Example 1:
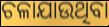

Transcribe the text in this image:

ଚଳାଯାଉଥିବା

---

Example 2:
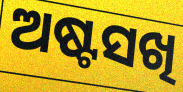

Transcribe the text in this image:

ଅଷ୍ଟସଖି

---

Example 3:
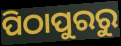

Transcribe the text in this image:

ପିଠାପୁରରୁ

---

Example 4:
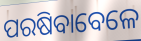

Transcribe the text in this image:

ପରଷିବାବେଳେ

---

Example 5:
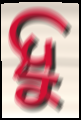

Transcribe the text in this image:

ହୁ